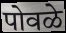
पोवळे